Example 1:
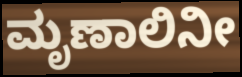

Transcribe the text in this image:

ಮೃಣಾಲಿನೀ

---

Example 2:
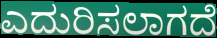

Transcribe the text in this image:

ಎದುರಿಸಲಾಗದೆ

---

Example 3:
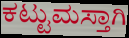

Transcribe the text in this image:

ಕಟ್ಟುಮಸ್ತಾಗಿ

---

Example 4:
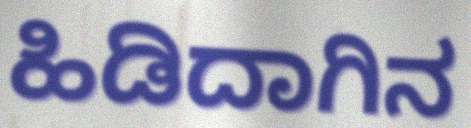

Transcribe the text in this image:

ಹಿಡಿದಾಗಿನ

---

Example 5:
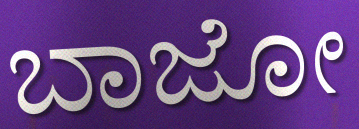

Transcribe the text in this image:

ಬಾಜೋ